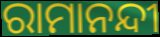
ରାମାନନ୍ଦୀ